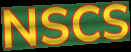
NSCS